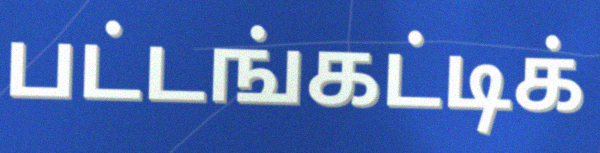
பட்டங்கட்டிக்